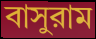
বাসুরাম